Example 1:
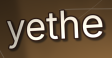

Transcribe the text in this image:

yethe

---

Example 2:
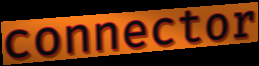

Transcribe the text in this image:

connector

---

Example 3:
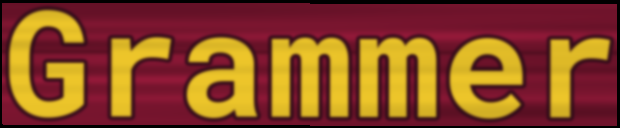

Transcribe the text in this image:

Grammer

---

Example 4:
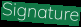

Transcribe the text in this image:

Signature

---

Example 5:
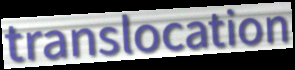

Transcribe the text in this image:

translocation